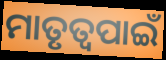
ମାତୃତ୍ୱପାଇଁ